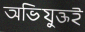
অভিযুক্তই